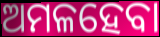
ଅମଳହେବା